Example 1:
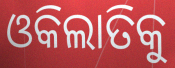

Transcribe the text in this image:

ଓକିଲାତିକୁ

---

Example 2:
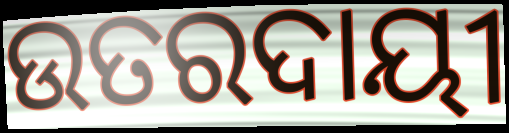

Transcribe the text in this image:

ଉତରଦାୟୀ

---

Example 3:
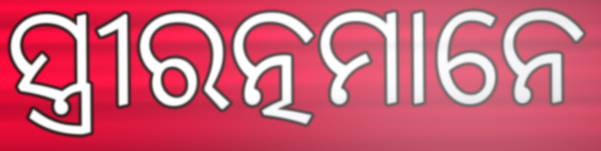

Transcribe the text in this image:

ସ୍ତ୍ରୀରତ୍ନମାନେ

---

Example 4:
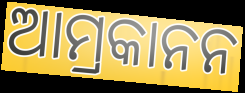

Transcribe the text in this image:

ଆମ୍ରକାନନ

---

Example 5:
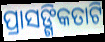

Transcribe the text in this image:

ପ୍ରାସଙ୍ଗିକତାଟି